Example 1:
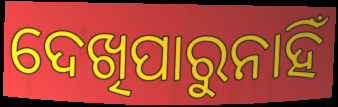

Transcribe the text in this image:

ଦେଖିପାରୁନାହିଁ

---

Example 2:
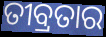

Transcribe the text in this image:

ତୀବ୍ରତାର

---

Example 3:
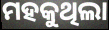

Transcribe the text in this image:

ମହକୁଥିଲା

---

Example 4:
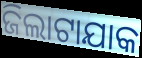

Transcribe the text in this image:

ଜିଲାଟାଯାକ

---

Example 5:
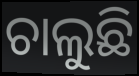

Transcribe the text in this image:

ଚାଲୁଛି